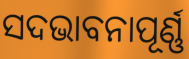
ସଦଭାବନାପୂର୍ଣ୍ଣ